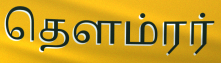
தௌம்ரர்